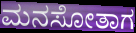
ಮನಸೋತಾಗ